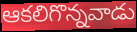
ఆకలిగొన్నవాడు